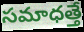
సమాధత్తే